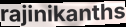
rajinikanths